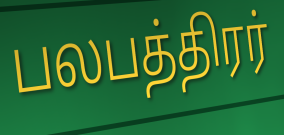
பலபத்திரர்